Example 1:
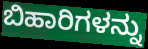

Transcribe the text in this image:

ಬಿಹಾರಿಗಳನ್ನು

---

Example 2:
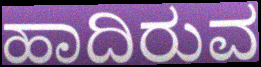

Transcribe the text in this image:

ಹಾದಿರುವ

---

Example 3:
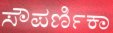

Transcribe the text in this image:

ಸೌಪರ್ಣಿಕಾ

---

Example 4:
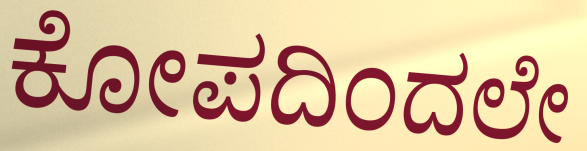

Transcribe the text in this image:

ಕೋಪದಿಂದಲೇ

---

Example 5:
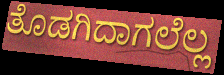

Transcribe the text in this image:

ತೊಡಗಿದಾಗಲೆಲ್ಲ